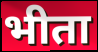
भीता